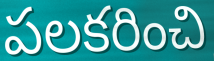
పలకరించి